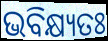
ଭବିକ୍ଷ୍ୟତଃ